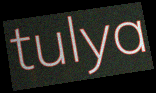
tulya